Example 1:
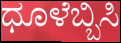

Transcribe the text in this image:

ಧೂಳೆಬ್ಬಿಸಿ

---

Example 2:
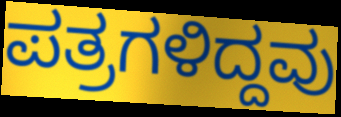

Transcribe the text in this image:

ಪತ್ರಗಳಿದ್ದವು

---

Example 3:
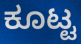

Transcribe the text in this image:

ಕೂಟ್ಟ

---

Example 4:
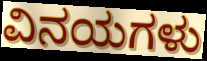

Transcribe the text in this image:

ವಿನಯಗಳು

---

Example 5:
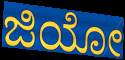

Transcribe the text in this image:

ಜಿಯೋ